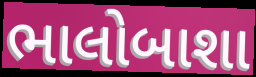
ભાલોબાશા